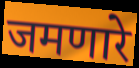
जमणारे